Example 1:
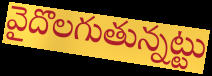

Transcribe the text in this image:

వైదొలగుతున్నట్టు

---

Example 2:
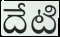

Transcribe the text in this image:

దేటి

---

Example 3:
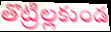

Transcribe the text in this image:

తొట్రిల్లకుండ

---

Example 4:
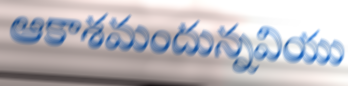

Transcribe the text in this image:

ఆకాశమందున్నవియు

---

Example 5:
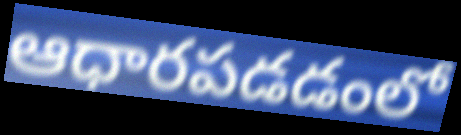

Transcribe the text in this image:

ఆధారపడడంలో